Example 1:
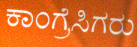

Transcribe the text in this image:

ಕಾಂಗ್ರೆಸಿಗರು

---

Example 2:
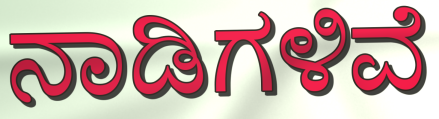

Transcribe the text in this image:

ನಾಡಿಗಳಿವೆ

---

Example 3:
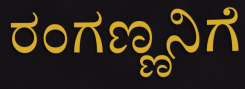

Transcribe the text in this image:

ರಂಗಣ್ಣನಿಗೆ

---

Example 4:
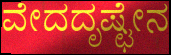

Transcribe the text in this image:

ವೇದದೃಷ್ಟೇನ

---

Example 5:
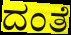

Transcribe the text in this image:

ದಂತೆ